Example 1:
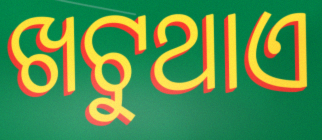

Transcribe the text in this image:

ଖଟୁଥାଏ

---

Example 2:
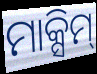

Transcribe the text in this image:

ମାକ୍ସିମ୍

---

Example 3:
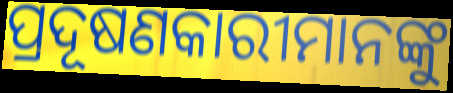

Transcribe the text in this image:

ପ୍ରଦୂଷଣକାରୀମାନଙ୍କୁ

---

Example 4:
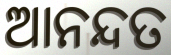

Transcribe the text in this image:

ଆନନ୍ଦତ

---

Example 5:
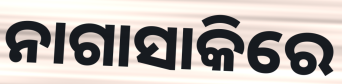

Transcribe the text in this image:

ନାଗାସାକିରେ